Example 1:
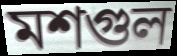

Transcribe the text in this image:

মশগুল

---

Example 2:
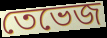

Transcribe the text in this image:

তেভেজ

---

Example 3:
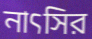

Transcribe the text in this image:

নাৎসির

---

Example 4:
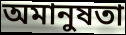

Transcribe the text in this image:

অমানুষতা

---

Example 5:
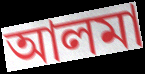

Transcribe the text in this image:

আলমা